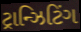
ટ્રાન્ઝિટિંગ